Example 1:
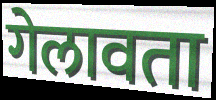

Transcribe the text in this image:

गेलावता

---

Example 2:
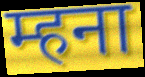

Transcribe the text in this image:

म्हना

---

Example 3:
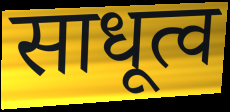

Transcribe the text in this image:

साधूत्व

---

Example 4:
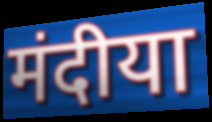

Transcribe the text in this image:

मंदीया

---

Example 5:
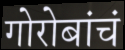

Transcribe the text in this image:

गोरोबांचं